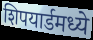
शिपयार्डमध्ये